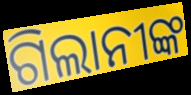
ଗିଲାନୀଙ୍କ